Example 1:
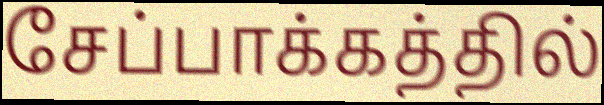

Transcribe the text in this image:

சேப்பாக்கத்தில்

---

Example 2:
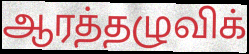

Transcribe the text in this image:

ஆரத்தழுவிக்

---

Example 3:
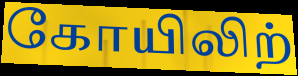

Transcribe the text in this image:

கோயிலிற்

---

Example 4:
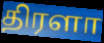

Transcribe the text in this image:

திரளா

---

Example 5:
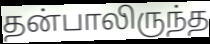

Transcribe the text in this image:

தன்பாலிருந்த